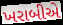
ખરાબીએ